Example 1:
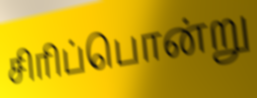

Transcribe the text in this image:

சிரிப்பொன்று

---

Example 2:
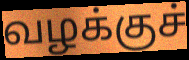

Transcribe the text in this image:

வழக்குச்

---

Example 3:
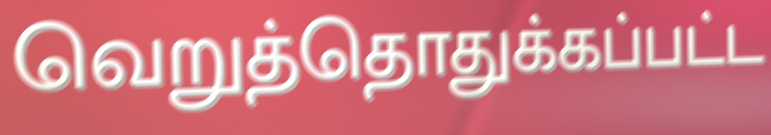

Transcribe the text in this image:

வெறுத்தொதுக்கப்பட்ட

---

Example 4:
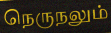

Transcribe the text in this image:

நெருநலும்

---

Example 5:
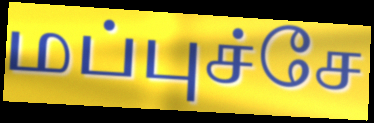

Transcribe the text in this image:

மப்புச்சே